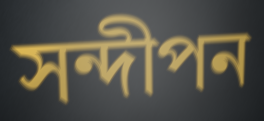
সন্দীপন